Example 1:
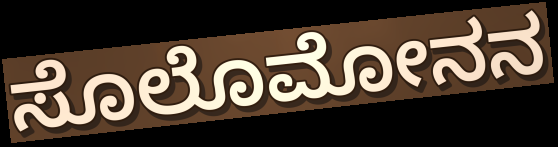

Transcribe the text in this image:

ಸೊಲೊಮೋನನ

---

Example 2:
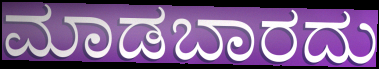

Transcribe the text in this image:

ಮಾಡಬಾರದು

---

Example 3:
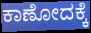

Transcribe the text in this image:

ಕಾಣೋದಕ್ಕೆ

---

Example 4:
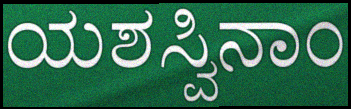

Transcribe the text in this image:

ಯಶಸ್ವಿನಾಂ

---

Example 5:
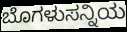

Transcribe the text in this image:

ಬೊಗಳುಸನ್ನಿಯ